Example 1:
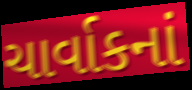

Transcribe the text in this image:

ચાર્વાકનાં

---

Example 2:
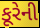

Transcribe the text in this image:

કૂરેની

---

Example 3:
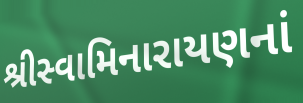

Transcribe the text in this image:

શ્રીસ્વામિનારાયણનાં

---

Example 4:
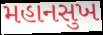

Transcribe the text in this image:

મહાનસુખ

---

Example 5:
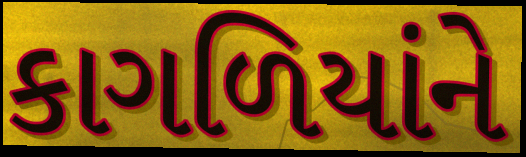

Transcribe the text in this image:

કાગળિયાંને